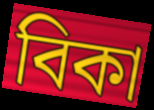
বিকা